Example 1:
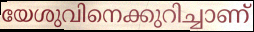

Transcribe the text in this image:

യേശുവിനെക്കുറിച്ചാണ്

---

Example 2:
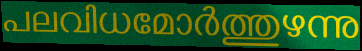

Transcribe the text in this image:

പലവിധമോർത്തുഴന്നു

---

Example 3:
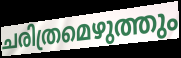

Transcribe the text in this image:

ചരിത്രമെഴുത്തും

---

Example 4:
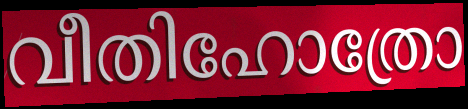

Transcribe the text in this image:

വീതിഹോത്രോ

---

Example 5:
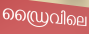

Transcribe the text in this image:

ഡ്രൈവിലെ